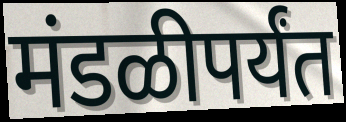
मंडळीपर्यंत